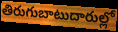
తిరుగుబాటుదారుల్లో